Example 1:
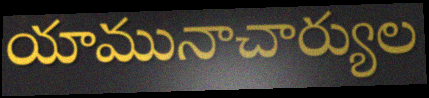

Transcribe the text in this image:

యామునాచార్యుల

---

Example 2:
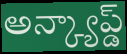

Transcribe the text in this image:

అన్క్యాప్డ్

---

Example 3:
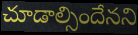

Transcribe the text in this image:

చూడాల్సిందేనని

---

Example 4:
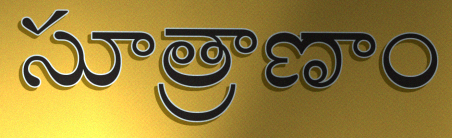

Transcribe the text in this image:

సూత్రాణాం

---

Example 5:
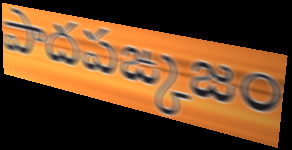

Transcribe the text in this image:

పాదపఙ్కజం